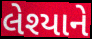
લેશ્યાને